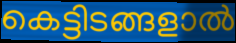
കെട്ടിടങ്ങളാൽ